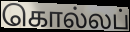
கொல்லப்